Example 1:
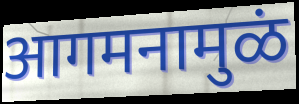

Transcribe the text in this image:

आगमनामुळं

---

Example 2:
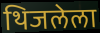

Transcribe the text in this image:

थिजलेला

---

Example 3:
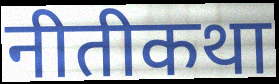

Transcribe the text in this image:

नीतीकथा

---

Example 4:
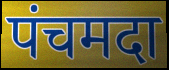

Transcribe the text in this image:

पंचमदा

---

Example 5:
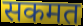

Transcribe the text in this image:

सकमत